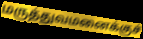
மருத்துவமனைக்குச்